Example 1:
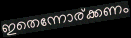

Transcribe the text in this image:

ഇതെന്നോര്ക്കണം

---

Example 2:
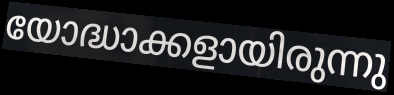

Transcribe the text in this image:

യോദ്ധാക്കളായിരുന്നു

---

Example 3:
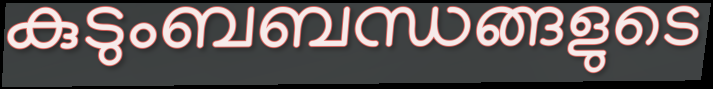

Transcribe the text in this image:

കുടുംബബന്ധങ്ങളുടെ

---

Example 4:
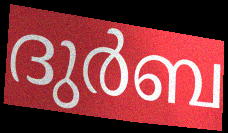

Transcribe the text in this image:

ദുർബ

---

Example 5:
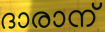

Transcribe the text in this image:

ദാരാന്